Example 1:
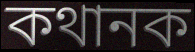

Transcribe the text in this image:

কথানক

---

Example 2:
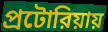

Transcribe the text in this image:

প্রটোরিয়ায়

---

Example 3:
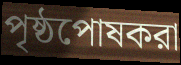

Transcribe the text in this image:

পৃষ্ঠপোষকরা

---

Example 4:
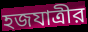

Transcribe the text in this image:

হজযাত্রীর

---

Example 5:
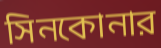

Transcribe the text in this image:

সিনকোনার